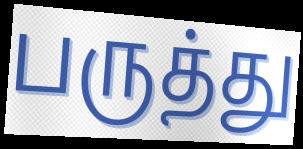
பருத்து